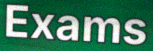
Exams